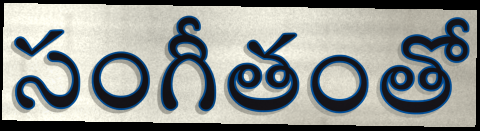
సంగీతంతో